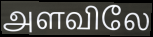
அளவிலே